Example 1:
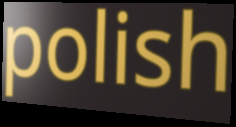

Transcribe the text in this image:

polish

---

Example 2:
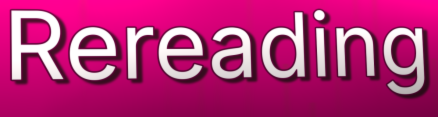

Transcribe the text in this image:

Rereading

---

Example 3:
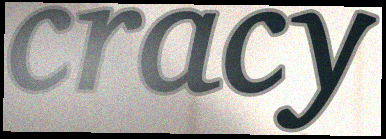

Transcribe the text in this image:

cracy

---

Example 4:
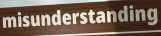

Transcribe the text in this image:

misunderstanding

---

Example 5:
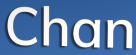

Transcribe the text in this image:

Chan